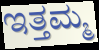
ಇತ್ತಮ್ಮ